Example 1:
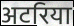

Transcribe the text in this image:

अटरिया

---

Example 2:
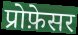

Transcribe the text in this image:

प्रोफ़ेसर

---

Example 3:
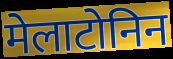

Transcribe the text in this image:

मेलाटोनिन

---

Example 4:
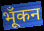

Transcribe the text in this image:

भूँकन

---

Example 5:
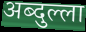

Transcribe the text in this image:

अब्दुल्ला